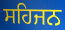
ਸਹਿਜਨ